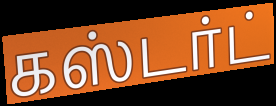
கஸ்டர்ட்